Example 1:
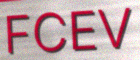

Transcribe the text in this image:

FCEV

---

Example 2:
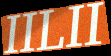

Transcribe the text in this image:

IILII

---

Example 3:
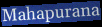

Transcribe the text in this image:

Mahapurana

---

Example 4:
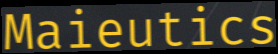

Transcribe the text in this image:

Maieutics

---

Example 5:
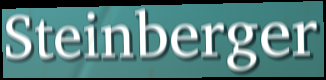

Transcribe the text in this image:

Steinberger